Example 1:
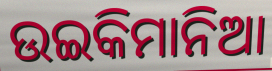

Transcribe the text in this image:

ଉଇକିମାନିଆ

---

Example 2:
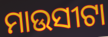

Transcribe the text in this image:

ମାଉସୀଟା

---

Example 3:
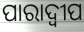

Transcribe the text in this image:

ପାରାଦ୍ୱୀପ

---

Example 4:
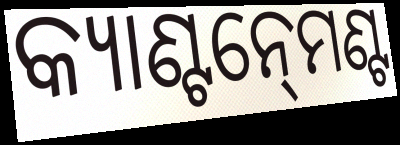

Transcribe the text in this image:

କ୍ୟାଣ୍ଟନ୍‍ମେଣ୍ଟ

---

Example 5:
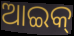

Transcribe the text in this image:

ଆଇକ୍